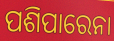
ପଶିପାରେନା